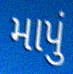
માપું